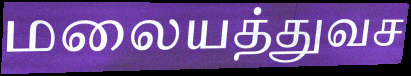
மலையத்துவச